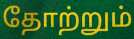
தோற்றும்